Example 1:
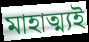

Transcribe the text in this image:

মাহাত্ম্যই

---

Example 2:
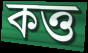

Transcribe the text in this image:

কত্ত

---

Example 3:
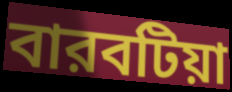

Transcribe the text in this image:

বারবটিয়া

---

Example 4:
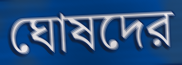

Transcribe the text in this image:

ঘোষদের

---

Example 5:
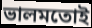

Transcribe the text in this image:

ভালমতোই